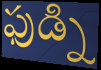
ఫుడ్ని